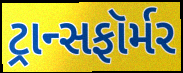
ટ્રાન્સફૉર્મર